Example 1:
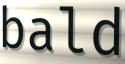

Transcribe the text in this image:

bald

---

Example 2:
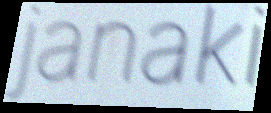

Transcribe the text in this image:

janaki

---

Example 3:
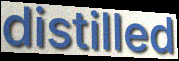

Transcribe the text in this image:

distilled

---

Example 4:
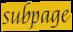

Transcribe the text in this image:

subpage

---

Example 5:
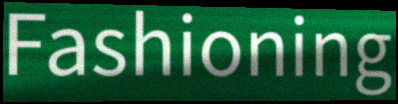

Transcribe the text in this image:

Fashioning